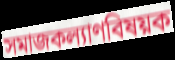
সমাজকল্যাণবিষয়ক